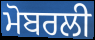
ਮੋਬਰਲੀ